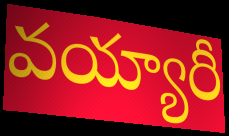
వయ్యారీ